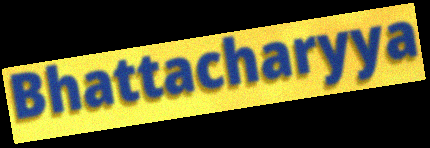
Bhattacharyya